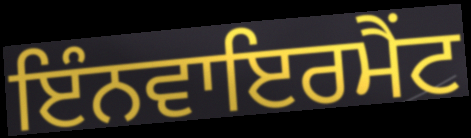
ਇੰਨਵਾਇਰਮੈਂਟ